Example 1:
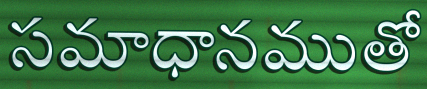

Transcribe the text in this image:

సమాధానముతో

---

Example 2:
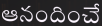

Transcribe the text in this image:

ఆనందించే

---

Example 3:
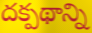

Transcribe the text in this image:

దక్పథాన్ని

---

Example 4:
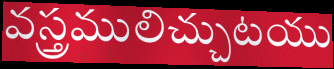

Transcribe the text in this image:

వస్త్రములిచ్చుటయు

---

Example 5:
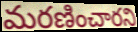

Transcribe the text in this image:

మరణించారని